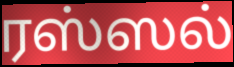
ரஸ்ஸல்